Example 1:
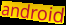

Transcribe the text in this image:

android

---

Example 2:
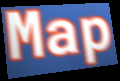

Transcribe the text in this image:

Map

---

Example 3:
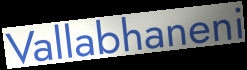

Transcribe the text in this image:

Vallabhaneni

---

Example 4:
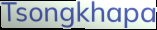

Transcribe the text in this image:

Tsongkhapa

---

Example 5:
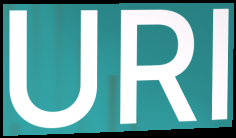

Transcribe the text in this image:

URI